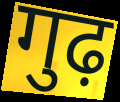
गुढ़